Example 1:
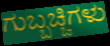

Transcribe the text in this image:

ಗುಬ್ಬಚ್ಚಿಗಳು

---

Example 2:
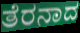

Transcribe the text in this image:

ತೆರನಾದ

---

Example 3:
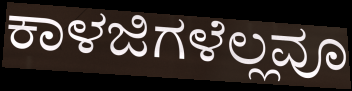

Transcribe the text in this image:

ಕಾಳಜಿಗಳೆಲ್ಲವೂ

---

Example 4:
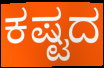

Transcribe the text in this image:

ಕಷ್ಟದ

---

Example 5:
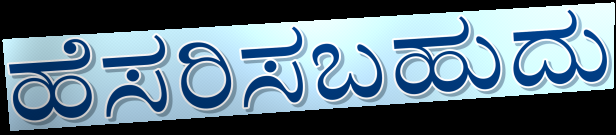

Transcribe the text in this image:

ಹೆಸರಿಸಬಹುದು